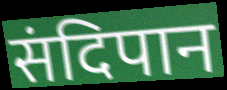
संदिपान